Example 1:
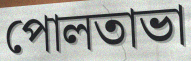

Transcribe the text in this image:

পোলতাভা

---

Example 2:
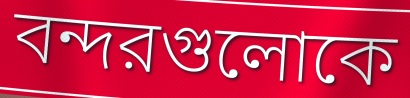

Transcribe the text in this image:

বন্দরগুলোকে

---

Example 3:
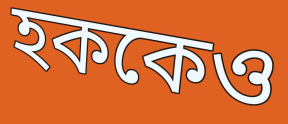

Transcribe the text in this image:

হককেও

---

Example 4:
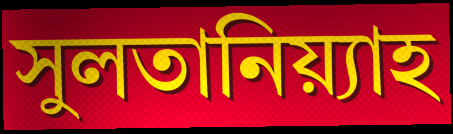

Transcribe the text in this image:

সুলতানিয়্যাহ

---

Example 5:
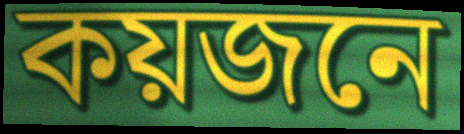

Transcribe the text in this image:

কয়জনে